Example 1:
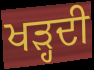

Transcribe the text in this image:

ਖੜ੍ਹਦੀ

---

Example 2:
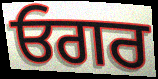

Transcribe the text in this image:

ਓਗਰ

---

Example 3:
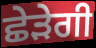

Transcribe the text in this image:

ਛੇੜੇਗੀ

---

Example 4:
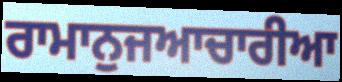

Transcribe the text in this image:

ਰਾਮਾਨੁਜਆਚਾਰੀਆ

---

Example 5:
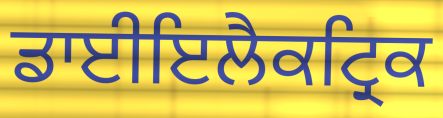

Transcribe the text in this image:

ਡਾਈਇਲੈਕਟ੍ਰਿਕ